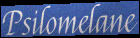
Psilomelane